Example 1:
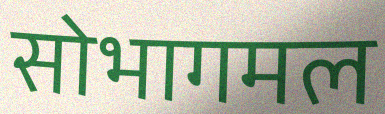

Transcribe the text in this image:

सोभागमल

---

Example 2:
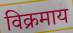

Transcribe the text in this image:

विक्रमाय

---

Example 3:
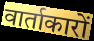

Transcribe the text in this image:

वार्ताकारों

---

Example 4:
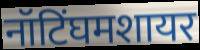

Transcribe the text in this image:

नॉटिंघमशायर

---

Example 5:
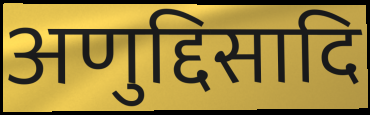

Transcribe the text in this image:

अणुद्दिसादि